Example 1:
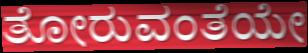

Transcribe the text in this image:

ತೋರುವಂತೆಯೇ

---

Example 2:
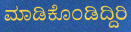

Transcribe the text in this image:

ಮಾಡಿಕೊಂಡಿದ್ದಿರಿ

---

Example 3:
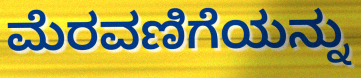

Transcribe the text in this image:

ಮೆರವಣಿಗೆಯನ್ನು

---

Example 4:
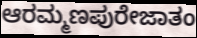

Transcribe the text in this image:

ಆರಮ್ಮಣಪುರೇಜಾತಂ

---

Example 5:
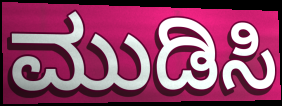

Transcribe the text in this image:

ಮುಡಿಸಿ